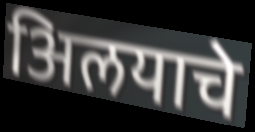
अिलयाचे